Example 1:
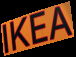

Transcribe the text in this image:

IKEA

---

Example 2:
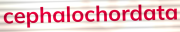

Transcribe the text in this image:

cephalochordata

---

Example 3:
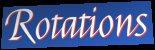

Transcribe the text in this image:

Rotations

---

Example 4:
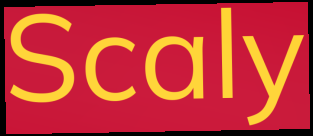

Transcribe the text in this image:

Scaly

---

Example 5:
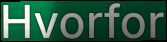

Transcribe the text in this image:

Hvorfor